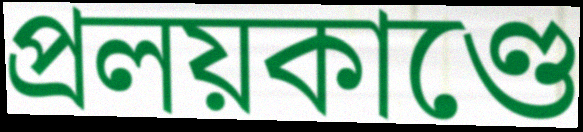
প্রলয়কাণ্ডে